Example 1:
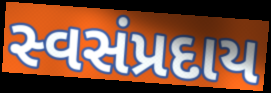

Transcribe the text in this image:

સ્વસંપ્રદાય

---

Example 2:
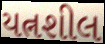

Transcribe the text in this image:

યત્નશીલ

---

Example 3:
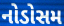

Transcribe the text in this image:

નોડોસમ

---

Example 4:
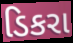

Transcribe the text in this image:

ડિકરા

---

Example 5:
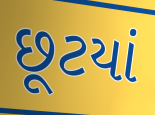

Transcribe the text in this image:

છૂટયાં